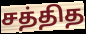
சத்தித